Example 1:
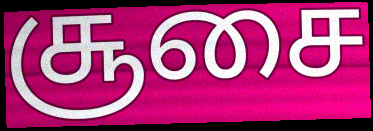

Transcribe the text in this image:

சூசை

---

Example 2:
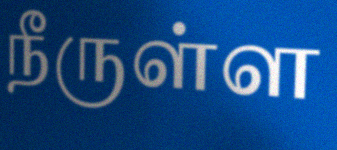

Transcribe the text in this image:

நீருள்ள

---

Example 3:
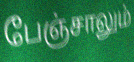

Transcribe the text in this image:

பேஞ்சாலும்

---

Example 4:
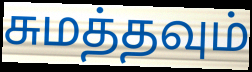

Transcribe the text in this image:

சுமத்தவும்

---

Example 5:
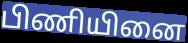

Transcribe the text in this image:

பிணியினை